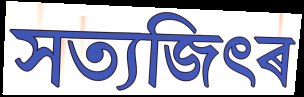
সত্যজিৎৰ